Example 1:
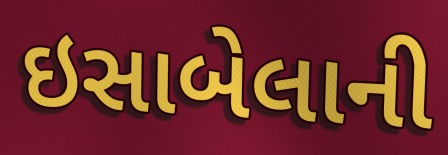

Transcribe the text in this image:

ઇસાબેલાની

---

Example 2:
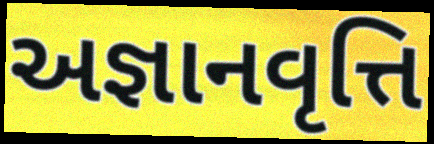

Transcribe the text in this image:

અજ્ઞાનવૃત્તિ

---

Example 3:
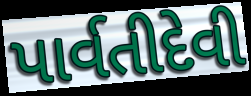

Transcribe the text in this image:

પાર્વતીદેવી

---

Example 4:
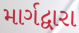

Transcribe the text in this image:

માર્ગદ્વારા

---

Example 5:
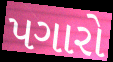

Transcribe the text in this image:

પગારો